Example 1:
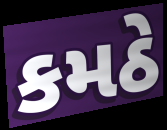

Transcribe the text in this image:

કમઠે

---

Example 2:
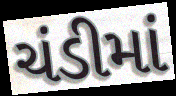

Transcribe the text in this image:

ચંડીમાં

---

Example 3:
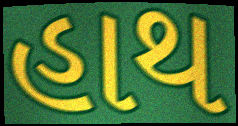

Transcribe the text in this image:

હાથ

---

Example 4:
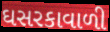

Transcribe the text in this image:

ઘસરકાવાળી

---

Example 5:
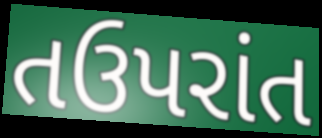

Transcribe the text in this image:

તઉપરાંત